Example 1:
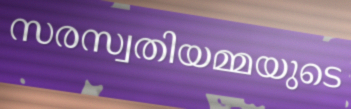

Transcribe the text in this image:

സരസ്വതിയമ്മയുടെ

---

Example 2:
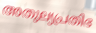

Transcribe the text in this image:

അതുല്യപ്രതിഭ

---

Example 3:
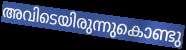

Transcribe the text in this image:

അവിടെയിരുന്നുകൊണ്ടു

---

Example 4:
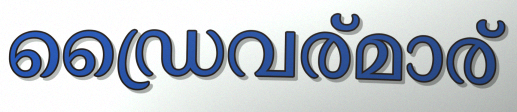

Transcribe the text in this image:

ഡ്രൈവര്മാര്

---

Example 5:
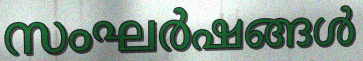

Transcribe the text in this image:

സംഘർഷങ്ങൾ